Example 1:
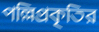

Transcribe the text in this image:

পল্লিপ্রকৃতির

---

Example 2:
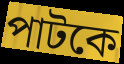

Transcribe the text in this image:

পাটকে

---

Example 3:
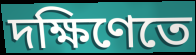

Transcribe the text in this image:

দক্ষিণেতে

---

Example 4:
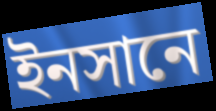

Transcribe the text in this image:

ইনসানে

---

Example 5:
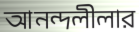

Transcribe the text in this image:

আনন্দলীলার